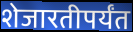
शेजारतीपर्यंत